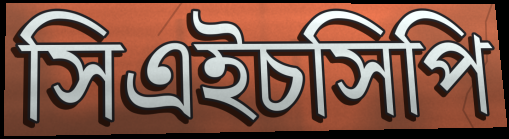
সিএইচসিপি